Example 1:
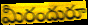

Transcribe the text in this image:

మీరందురూ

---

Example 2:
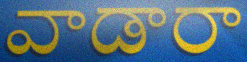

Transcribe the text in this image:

వాడారా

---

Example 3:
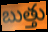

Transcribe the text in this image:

బుత్తు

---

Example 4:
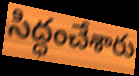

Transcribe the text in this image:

సిద్ధంచేశారు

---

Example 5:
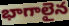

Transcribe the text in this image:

భాగాలైన